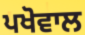
ਪਖੋਵਾਲ